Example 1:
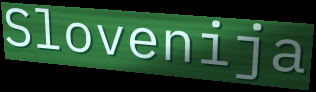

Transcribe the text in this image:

Slovenija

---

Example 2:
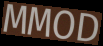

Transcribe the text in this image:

MMOD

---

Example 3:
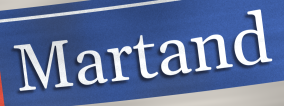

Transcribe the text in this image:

Martand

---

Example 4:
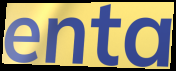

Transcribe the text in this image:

enta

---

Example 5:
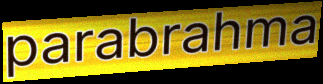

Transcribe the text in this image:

parabrahma